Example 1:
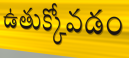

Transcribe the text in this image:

ఉతుక్కోవడం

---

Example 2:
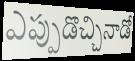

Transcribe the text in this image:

ఎప్పుడొచ్చినాడో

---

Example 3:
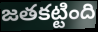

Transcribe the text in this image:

జతకట్టింది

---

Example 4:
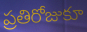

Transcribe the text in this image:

ప్రతిరోజుకూ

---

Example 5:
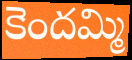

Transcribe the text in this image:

కెందమ్మి